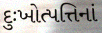
દુઃખોત્પત્તિનાં